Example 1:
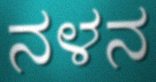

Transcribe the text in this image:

ನಳನ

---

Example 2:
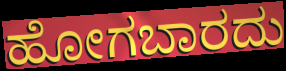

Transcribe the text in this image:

ಹೋಗಬಾರದು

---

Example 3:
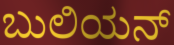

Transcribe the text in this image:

ಬುಲಿಯನ್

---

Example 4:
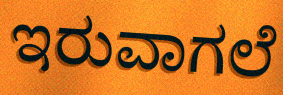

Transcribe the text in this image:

ಇರುವಾಗಲೆ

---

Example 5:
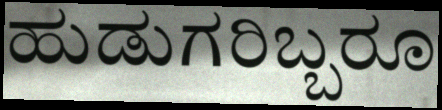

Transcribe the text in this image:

ಹುಡುಗರಿಬ್ಬರೂ